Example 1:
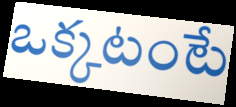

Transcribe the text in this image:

ఒక్కటంటే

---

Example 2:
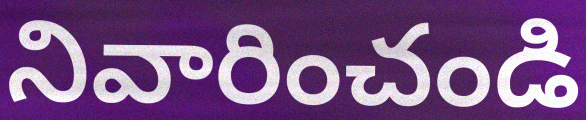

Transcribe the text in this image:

నివారించండి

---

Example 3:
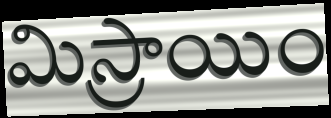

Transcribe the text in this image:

మిస్రాయిం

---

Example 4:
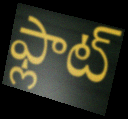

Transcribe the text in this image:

ఫ్లాట్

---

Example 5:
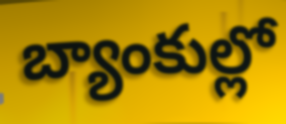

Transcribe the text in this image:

బ్యాంకుల్లో